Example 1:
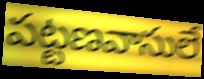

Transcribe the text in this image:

పట్టణవాసులే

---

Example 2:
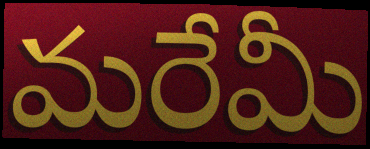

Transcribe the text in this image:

మరేమీ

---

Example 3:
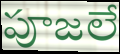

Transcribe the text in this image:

పూజలే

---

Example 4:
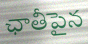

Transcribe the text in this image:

ఛాతీపైన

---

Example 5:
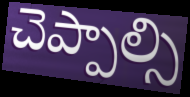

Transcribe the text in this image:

చెప్పాల్సి